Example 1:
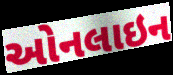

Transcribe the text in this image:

ઓનલાઇન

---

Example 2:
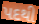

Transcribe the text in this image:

પદથી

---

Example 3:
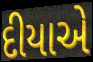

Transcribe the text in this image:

દીયાએ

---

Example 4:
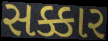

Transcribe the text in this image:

સક્કાર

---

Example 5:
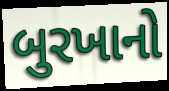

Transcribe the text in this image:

બુરખાનો